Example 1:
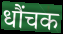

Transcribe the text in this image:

धौंचक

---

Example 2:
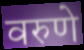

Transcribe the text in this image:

वरुणे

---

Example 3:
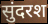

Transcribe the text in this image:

सुंदरश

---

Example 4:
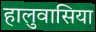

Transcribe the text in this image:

हालुवासिया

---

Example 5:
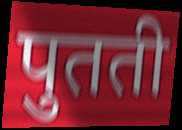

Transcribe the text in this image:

पुतती